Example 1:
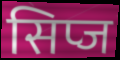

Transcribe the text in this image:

सिप्ज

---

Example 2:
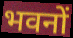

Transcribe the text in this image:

भवनों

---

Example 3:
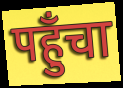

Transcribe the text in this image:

पहुँचा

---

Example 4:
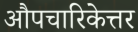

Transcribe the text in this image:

औपचारिकेत्तर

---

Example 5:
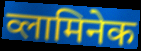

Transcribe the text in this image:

व्लामिनेक